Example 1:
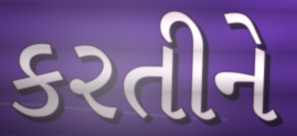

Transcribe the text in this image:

કરતીને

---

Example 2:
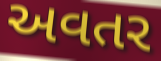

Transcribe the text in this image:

અવતર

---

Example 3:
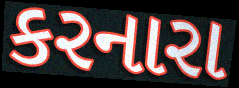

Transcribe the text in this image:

કરનારા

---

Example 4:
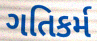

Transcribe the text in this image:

ગતિકર્મ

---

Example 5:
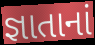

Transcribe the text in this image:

જ્ઞાતાનાં